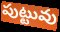
పుట్టువు